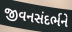
જીવનસંદર્ભને